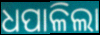
ଧପାଳିଲା